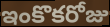
ఇంకొకరోజు